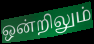
ஒன்றிலும்